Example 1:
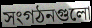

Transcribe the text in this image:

সংগঠনগুলো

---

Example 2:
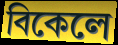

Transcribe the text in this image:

বিকেলে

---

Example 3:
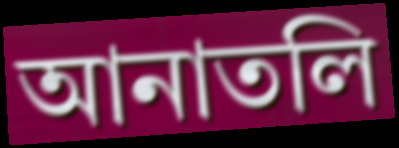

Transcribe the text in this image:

আনাতলি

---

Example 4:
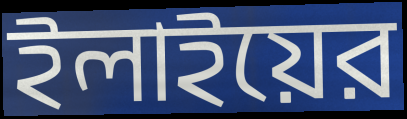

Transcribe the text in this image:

ইলাইয়ের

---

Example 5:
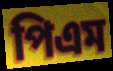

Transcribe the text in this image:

পিএম